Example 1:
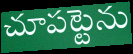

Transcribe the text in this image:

చూపట్టెను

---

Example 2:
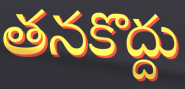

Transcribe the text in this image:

తనకొద్దు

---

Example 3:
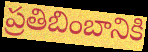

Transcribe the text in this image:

ప్రతిబింబానికి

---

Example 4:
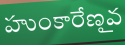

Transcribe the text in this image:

హుంకారేణౖవ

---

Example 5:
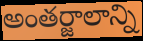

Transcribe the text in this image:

అంతర్జాలాన్ని